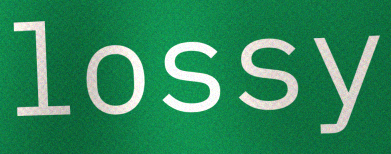
lossy